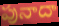
పునాదా